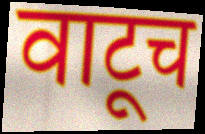
वाटूच